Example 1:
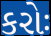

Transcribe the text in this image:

કરોઃ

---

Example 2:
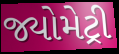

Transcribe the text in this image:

જ્યોમેટ્રી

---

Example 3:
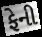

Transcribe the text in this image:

ફેની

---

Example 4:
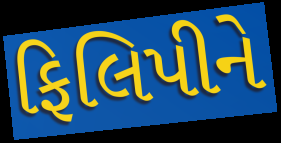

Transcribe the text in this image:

ફિલિપીને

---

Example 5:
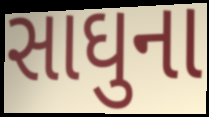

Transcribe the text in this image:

સાઘુના